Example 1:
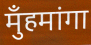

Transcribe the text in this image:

मुँहमांगा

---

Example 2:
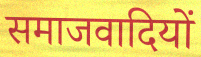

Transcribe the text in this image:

समाजवादियों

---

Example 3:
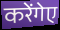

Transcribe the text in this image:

करेंगेए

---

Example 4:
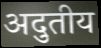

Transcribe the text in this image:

अदुतीय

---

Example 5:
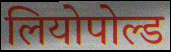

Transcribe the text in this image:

लियोपोल्ड